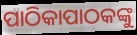
ପାଠିକାପାଠକଙ୍କୁ